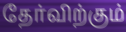
தேர்விற்கும்